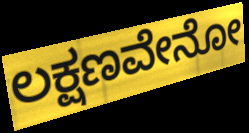
ಲಕ್ಷಣವೇನೋ